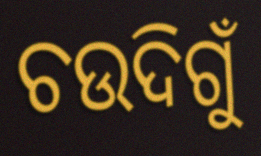
ଚଉଦିଗୁଁ